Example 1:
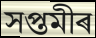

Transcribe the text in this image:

সপ্তমীৰ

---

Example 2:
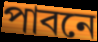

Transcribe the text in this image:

পাবনে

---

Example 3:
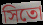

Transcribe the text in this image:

সিতো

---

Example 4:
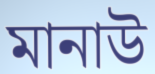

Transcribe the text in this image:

মানাউ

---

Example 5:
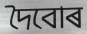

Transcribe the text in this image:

দৈবোৰ